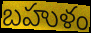
బహుళం